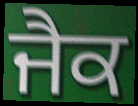
ਜੈਕ